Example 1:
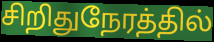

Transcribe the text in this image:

சிறிதுநேரத்தில்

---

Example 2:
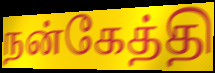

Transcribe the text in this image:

நன்கேத்தி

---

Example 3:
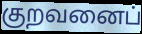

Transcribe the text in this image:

குறவனைப்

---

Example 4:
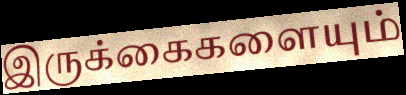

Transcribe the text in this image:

இருக்கைகளையும்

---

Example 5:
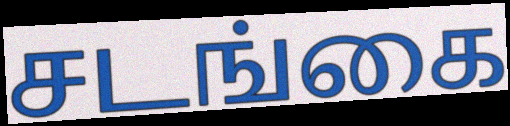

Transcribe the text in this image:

சடங்கை